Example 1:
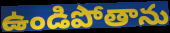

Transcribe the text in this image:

ఉండిపోతాను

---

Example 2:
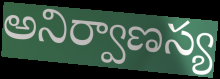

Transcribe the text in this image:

అనిర్వాణస్య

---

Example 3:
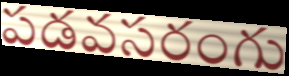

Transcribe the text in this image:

పడవసరంగు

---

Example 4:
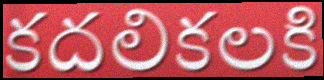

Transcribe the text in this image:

కదలికలకి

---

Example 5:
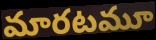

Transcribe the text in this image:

మారటమూ